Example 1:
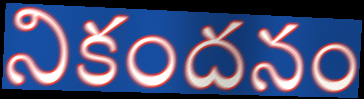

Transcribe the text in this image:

నికందనం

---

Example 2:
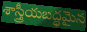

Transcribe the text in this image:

శాస్త్రీయబద్ధమైన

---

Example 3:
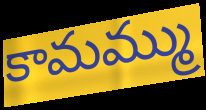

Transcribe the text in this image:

కామమ్ము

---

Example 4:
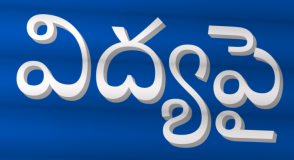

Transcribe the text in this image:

విద్యపై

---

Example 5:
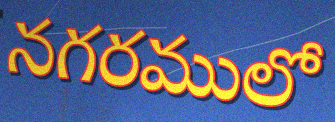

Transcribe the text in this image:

నగరములో